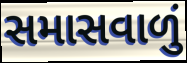
સમાસવાળું